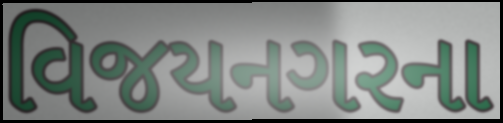
વિજયનગરના